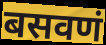
बसवणं